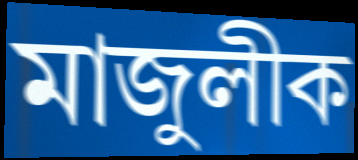
মাজুলীক